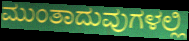
ಮುಂತಾದುವುಗಳಲ್ಲಿ